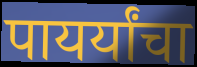
पायर्यांचा